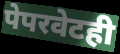
पेपरवेटही